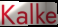
Kalke